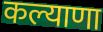
कल्याणा